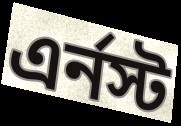
এর্নস্ট